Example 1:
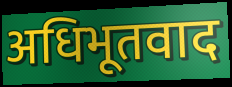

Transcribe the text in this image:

अधिभूतवाद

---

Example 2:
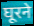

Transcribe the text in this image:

घूरने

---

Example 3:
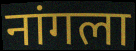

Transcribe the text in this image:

नांगला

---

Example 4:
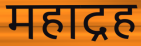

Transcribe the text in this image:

महाद्रह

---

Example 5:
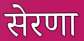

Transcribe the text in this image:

सेरणा